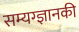
सम्यग्ज्ञानकी